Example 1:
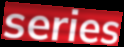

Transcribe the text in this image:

series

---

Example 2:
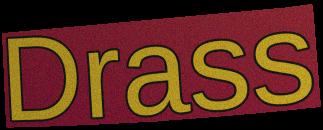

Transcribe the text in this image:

Drass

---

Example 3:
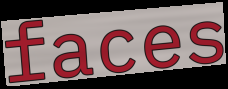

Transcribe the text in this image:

faces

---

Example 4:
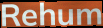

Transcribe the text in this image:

Rehum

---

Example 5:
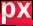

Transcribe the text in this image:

px